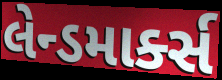
લેન્ડમાર્ક્સ